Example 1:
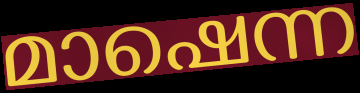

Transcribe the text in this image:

മാഷെന്ന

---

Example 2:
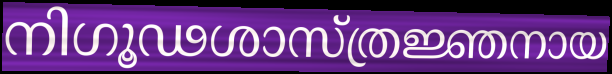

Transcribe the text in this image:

നിഗൂഢശാസ്ത്രജ്ഞനായ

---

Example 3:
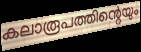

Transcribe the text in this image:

കലാരൂപത്തിന്റെയും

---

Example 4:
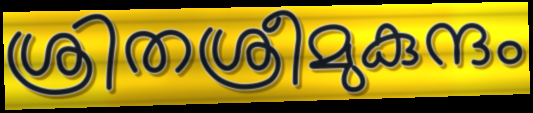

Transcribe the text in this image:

ശ്രിതശ്രീമുകുന്ദം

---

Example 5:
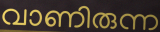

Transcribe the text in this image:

വാണിരുന്ന